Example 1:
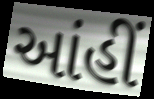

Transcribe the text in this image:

આંહીં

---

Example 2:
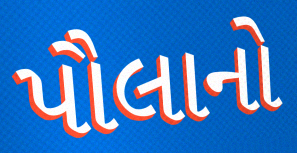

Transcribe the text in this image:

પૌલાનો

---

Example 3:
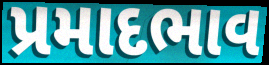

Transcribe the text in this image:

પ્રમાદભાવ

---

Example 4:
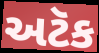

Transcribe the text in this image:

અટૅક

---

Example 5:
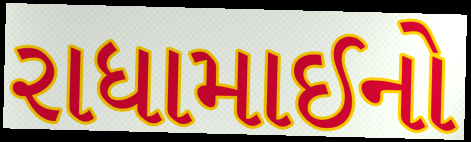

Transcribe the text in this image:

રાધામાઈનો